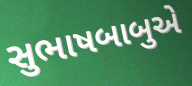
સુભાષબાબુએ